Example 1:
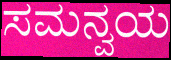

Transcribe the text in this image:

ಸಮನ್ವಯ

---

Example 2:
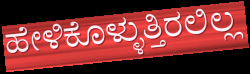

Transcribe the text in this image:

ಹೇಳಿಕೊಳ್ಳುತ್ತಿರಲಿಲ್ಲ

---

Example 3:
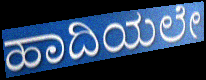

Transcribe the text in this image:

ಹಾದಿಯಲೇ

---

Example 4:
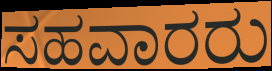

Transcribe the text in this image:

ಸಹವಾರರು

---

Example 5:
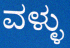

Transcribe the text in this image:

ವಳ್ಳು